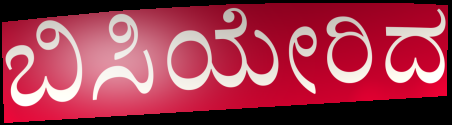
ಬಿಸಿಯೇರಿದ